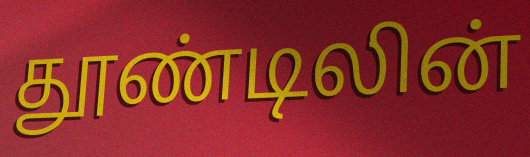
தூண்டிலின்